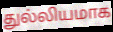
துல்லியமாக